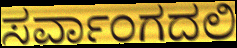
ಸರ್ವಾಂಗದಲಿ